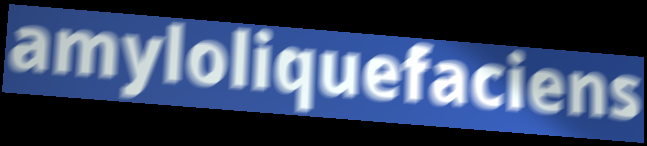
amyloliquefaciens